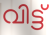
വിട്ട്